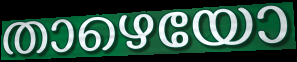
താഴെയോ